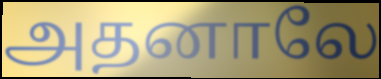
அதனாலே